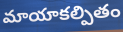
మాయాకల్పితం